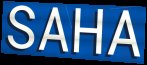
SAHA